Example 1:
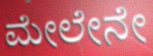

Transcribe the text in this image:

ಮೇಲೇನೇ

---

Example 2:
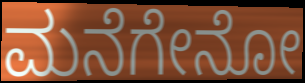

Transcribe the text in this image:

ಮನೆಗೇನೋ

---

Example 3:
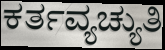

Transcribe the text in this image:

ಕರ್ತವ್ಯಚ್ಯುತಿ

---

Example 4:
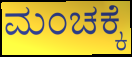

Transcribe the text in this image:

ಮಂಚಕ್ಕೆ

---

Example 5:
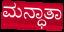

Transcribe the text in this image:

ಮನ್ಧಾತಾ